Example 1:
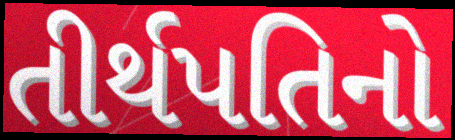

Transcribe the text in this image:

તીર્થપતિનો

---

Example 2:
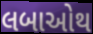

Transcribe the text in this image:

લબાઓથ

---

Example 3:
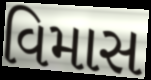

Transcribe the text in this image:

વિમાસ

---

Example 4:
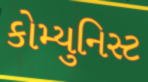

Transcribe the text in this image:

કોમ્યુનિસ્ટ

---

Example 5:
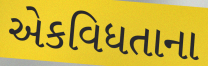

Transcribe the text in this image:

એકવિધતાના